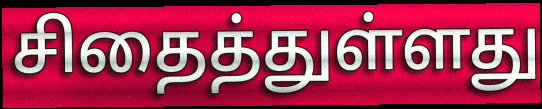
சிதைத்துள்ளது